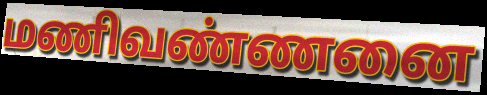
மணிவண்ணனை